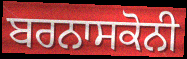
ਬਰਨਾਸਕੋਨੀ